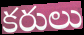
కరులు